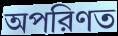
অপরিণত